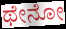
ಥೇನೋ